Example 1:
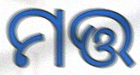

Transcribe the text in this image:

ମତ୍ତ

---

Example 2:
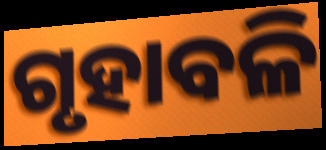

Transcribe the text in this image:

ଗୃହାବଳି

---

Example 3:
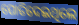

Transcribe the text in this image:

ପୋଡିଦେଇଥିଲେ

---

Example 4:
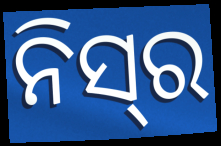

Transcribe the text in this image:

ନିସ୍‌ର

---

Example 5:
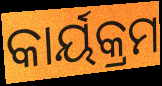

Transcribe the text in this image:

କାର୍ୟକ୍ରମ